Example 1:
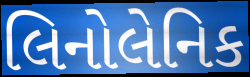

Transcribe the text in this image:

લિનોલેનિક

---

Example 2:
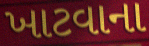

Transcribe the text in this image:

ખાટવાના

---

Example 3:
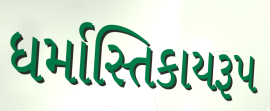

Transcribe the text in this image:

ધર્માસ્તિકાયરૂપ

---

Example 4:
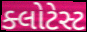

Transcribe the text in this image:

ક્લોટેસ્ટ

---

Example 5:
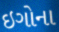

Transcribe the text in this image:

ઇગોના